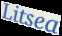
Litsea